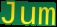
Jum